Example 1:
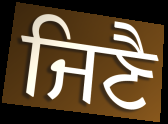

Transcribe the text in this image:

ਜਿਣੈ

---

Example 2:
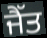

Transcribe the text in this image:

ਜੈੱਤ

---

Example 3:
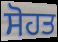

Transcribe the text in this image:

ਸੋਹਤ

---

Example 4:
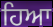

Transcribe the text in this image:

ਹਿਆ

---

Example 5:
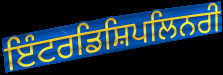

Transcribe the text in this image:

ਇੰਟਰਡਿਸ਼ਿਪਲਿਨਰੀ